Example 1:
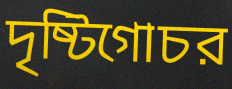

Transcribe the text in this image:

দৃষ্টিগোচর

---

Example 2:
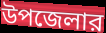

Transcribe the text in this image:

উপজেলার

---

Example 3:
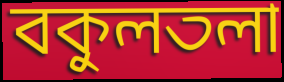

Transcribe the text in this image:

বকুলতলা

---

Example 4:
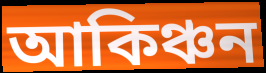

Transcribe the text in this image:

আকিঞ্চন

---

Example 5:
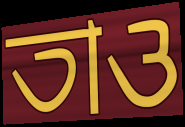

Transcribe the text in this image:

তাও